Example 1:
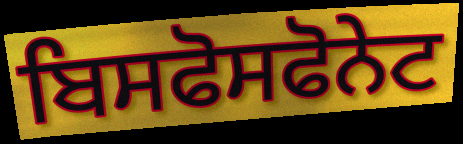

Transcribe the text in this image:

ਬਿਸਫੋਸਫੋਨੇਟ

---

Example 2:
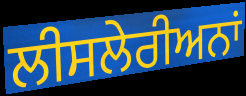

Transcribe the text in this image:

ਲੀਸਲੇਰੀਅਨਾਂ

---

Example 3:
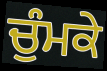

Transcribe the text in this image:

ਚੁੰਮਕੇ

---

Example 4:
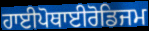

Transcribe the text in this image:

ਹਾਈਪੋਥਾਈਰੋਡਿਜਮ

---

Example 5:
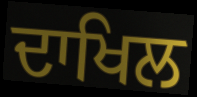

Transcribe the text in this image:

ਦਾਖਿਲ